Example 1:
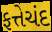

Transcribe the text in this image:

ફત્તેચંદ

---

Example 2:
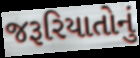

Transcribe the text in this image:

જરૂરિયાતોનું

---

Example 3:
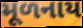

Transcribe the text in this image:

મૂળનાય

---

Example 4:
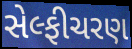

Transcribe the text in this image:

સેલ્ફીચરણ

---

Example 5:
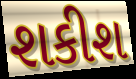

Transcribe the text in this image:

શકીશ